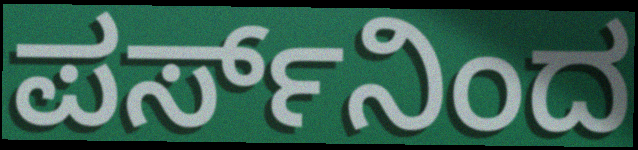
ಪರ್ಸ್‌ನಿಂದ